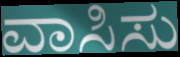
ವಾಸಿಸು